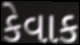
કેવાક